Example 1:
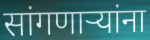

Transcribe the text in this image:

सांगणार्‍यांना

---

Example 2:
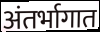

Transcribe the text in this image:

अंतर्भागात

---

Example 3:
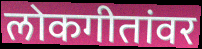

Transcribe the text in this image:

लोकगीतांवर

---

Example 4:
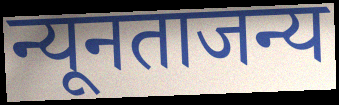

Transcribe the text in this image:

न्यूनताजन्य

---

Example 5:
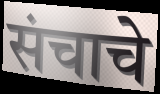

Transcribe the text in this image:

संचाचे